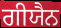
ਗੀਯੈਨ